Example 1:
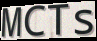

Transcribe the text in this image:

MCTs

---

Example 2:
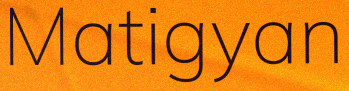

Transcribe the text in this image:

Matigyan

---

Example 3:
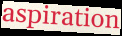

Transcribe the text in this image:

aspiration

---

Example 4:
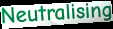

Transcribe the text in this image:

Neutralising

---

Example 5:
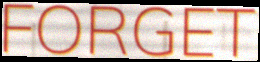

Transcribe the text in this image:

FORGET